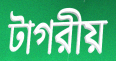
টাগরীয়